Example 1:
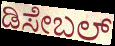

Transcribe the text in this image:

ಡಿಸೇಬಲ್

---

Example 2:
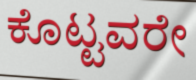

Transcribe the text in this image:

ಕೊಟ್ಟವರೇ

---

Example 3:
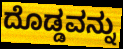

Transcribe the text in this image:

ದೊಡ್ಡವನ್ನು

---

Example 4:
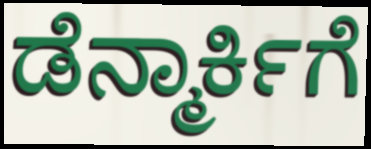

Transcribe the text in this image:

ಡೆನ್ಮಾರ್ಕಿಗೆ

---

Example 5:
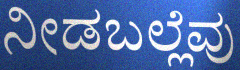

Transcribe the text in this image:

ನೀಡಬಲ್ಲೆವು